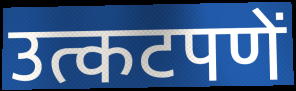
उत्कटपणें